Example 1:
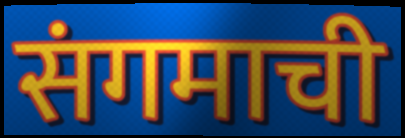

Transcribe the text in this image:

संगमाची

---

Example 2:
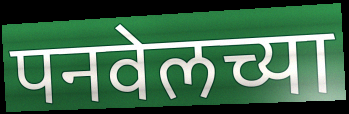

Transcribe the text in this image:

पनवेलच्या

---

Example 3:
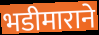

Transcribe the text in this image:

भडीमाराने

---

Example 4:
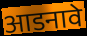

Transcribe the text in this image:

आडनावे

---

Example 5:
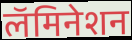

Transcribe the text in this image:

लॅमिनेशन